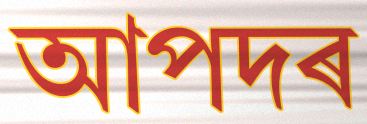
আপদৰ